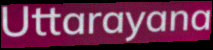
Uttarayana